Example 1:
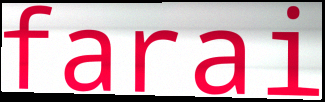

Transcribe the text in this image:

farai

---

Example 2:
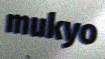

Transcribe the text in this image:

mukyo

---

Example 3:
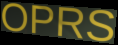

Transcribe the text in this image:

OPRS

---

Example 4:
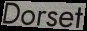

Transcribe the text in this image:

Dorset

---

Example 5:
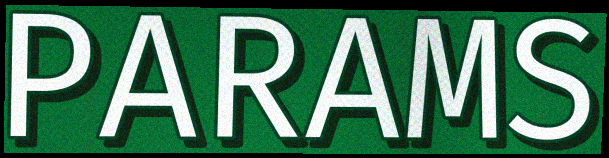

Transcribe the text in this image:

PARAMS